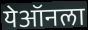
येऑनला